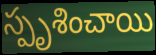
స్పృశించాయి